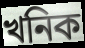
খনিক